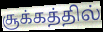
சூக்கத்தில்